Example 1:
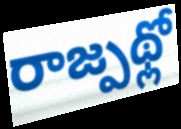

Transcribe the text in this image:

రాజ్పథ్లో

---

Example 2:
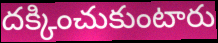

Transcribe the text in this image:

దక్కించుకుంటారు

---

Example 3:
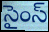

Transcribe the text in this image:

సైంస్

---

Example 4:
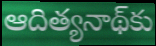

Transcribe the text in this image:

ఆదిత్యనాథ్‌కు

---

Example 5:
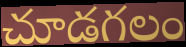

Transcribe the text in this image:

చూడగలం